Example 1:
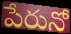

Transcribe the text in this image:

పేరునో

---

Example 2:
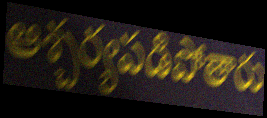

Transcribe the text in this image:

ఆశ్చర్యపడిపోతారు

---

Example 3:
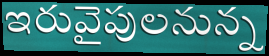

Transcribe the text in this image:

ఇరువైపులనున్న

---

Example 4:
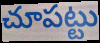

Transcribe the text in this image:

చూపట్టు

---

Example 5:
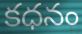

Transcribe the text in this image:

కధనం